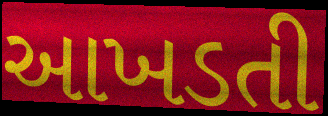
આખડતી